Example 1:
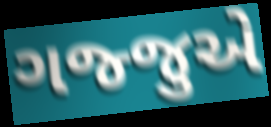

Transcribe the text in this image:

ગજ્જુએ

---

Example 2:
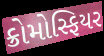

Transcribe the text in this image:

ક્રોમોસ્ફિયર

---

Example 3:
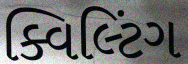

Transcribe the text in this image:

ક્વિલ્ટિંગ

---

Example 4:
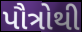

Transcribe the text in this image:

પૌત્રોથી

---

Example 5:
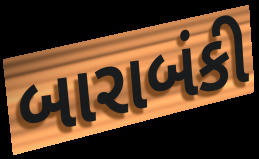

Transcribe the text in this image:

બારાબંકી